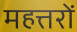
महत्तरों